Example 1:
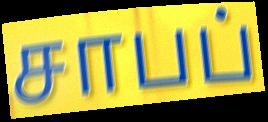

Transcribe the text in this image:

சாபப்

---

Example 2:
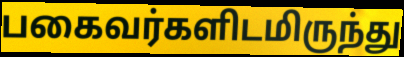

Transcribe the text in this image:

பகைவர்களிடமிருந்து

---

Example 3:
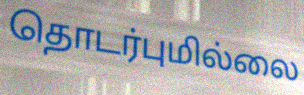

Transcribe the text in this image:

தொடர்புமில்லை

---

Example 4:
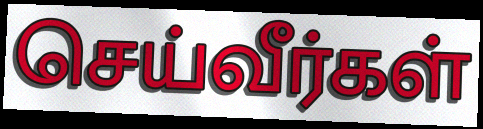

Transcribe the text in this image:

செய்வீர்கள்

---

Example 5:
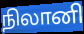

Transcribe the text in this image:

நிலானி